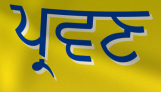
ਪ੍ਰਵਣ